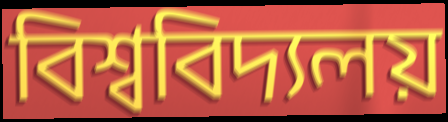
বিশ্ববিদ্যলয়